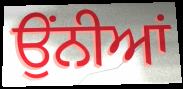
ਉੰਨੀਆਂ